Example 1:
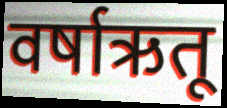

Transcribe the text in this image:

वर्षाऋतू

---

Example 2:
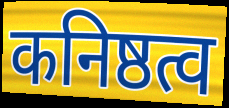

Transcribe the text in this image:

कनिष्ठत्व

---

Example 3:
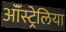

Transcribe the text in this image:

ऑॅस्ट्रेलिया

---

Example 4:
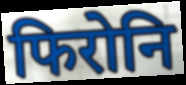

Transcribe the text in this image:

फिरोनि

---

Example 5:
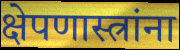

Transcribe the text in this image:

क्षेपणास्त्रांना